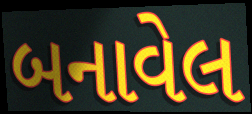
બનાવેલ